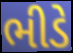
ભીડે